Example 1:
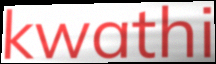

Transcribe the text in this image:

kwathi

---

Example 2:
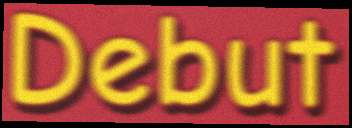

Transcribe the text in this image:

Debut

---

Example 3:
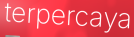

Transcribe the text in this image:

terpercaya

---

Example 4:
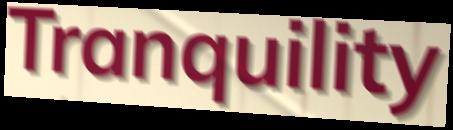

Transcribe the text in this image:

Tranquility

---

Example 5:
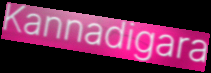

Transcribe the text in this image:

Kannadigara